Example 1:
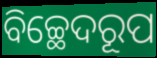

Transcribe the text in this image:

ବିଚ୍ଛେଦରୂପ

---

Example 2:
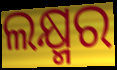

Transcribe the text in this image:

ଲକ୍ଷ୍ମର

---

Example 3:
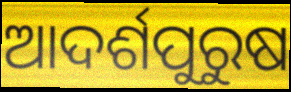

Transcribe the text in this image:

ଆଦର୍ଶପୁରୁଷ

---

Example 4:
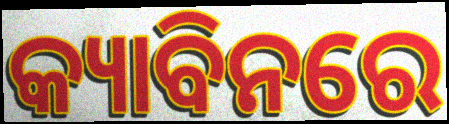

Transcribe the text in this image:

କ୍ୟାବିନରେ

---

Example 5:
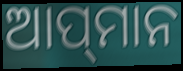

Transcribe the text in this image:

ଆପ୍‌ମାନ